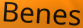
Benes